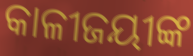
କାଳୀଜୟୀଙ୍କ